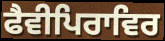
ਫੈਵੀਪਿਰਾਵਿਰ